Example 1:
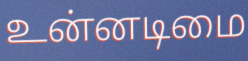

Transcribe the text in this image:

உன்னடிமை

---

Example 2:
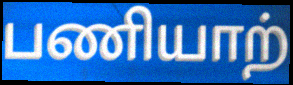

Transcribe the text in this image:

பணியாற்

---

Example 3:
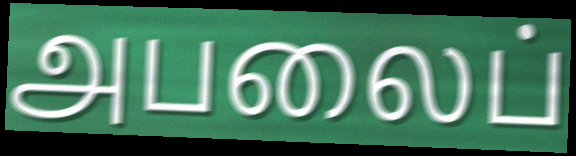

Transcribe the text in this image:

அபலைப்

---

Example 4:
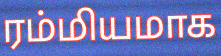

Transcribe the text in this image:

ரம்மியமாக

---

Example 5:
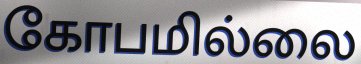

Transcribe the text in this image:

கோபமில்லை